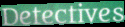
Detectives